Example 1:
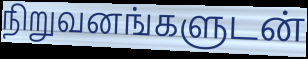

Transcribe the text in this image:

நிறுவனங்களுடன்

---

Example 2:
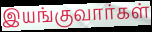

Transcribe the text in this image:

இயங்குவார்கள்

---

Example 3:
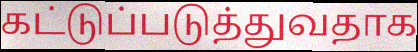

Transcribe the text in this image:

கட்டுப்படுத்துவதாக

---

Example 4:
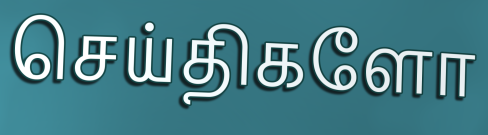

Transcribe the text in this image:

செய்திகளோ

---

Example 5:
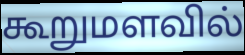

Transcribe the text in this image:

கூறுமளவில்